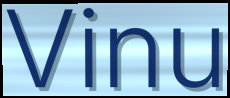
Vinu